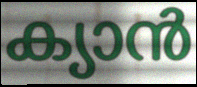
ക്യാൻ